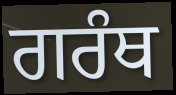
ਗਰੰਥ